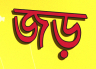
জড়